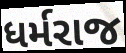
ધર્મરાજ